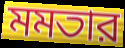
মমতার